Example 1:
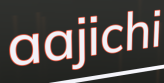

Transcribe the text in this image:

aajichi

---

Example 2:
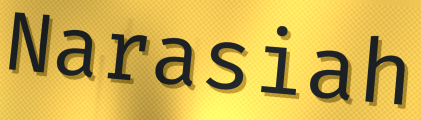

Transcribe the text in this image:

Narasiah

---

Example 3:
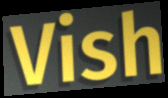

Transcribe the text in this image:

Vish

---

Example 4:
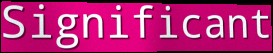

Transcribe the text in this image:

Significant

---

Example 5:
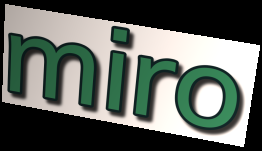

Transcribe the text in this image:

miro